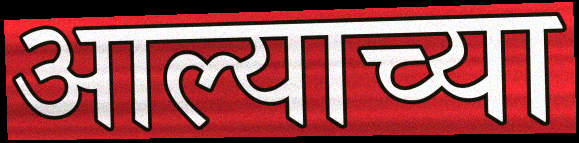
आल्याच्या